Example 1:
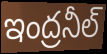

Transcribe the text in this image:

ఇంద్రనీల్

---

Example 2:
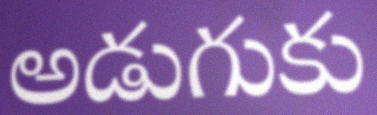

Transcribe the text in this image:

అడుగుకు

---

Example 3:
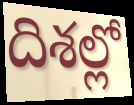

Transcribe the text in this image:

దిశల్లో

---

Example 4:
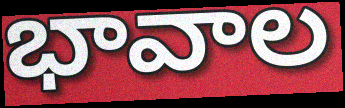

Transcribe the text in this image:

భావాల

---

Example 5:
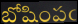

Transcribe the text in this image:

బోషింపఁ